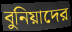
বুনিয়াদের